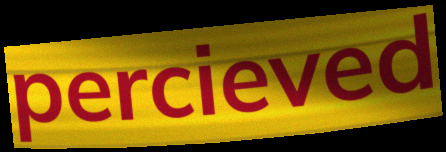
percieved